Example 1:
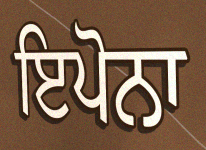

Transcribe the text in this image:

ਇਪੋਨਾ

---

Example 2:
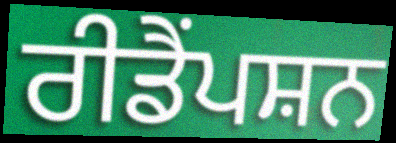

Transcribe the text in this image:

ਰੀਡੈਂਪਸ਼ਨ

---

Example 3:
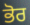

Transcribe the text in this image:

ਭੋਰ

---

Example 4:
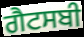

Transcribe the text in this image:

ਗੈਟਸਬੀ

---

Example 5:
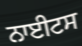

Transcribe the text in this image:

ਨਾਈਟਸ